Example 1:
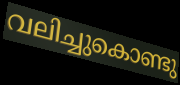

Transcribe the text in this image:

വലിച്ചുകൊണ്ടു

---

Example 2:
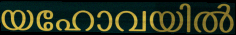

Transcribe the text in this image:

യഹോവയിൽ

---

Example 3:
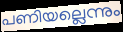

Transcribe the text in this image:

പണിയല്ലെന്നും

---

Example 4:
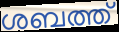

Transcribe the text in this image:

ശബത്ത്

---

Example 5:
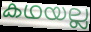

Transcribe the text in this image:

കഥയല്ല